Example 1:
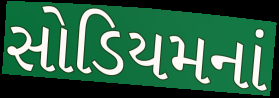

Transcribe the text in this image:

સોડિયમનાં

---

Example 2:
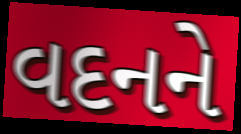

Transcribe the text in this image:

વદનને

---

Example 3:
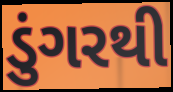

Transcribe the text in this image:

ડુંગરથી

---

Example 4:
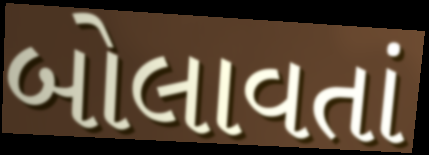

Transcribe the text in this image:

બોલાવતાં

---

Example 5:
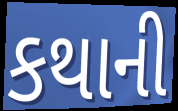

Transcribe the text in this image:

કથાની